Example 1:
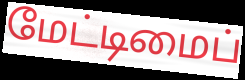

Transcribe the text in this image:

மேட்டிமைப்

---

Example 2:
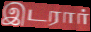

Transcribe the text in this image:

இடரார்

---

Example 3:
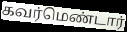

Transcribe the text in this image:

கவர்மெண்டார்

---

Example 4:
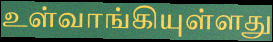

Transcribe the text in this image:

உள்வாங்கியுள்ளது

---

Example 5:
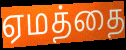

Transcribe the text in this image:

ஏமத்தை